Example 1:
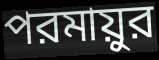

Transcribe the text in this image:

পরমায়ুর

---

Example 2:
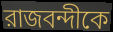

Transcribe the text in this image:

রাজবন্দীকে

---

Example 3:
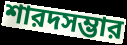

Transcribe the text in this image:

শারদসম্ভার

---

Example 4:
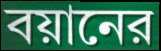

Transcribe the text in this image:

বয়ানের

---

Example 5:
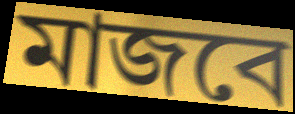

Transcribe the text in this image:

মাজবে